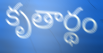
కృతార్థం